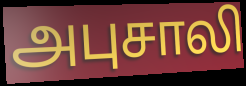
அபுசாலி